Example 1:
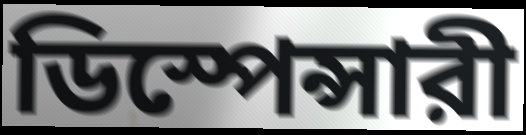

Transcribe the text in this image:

ডিস্পেন্সারী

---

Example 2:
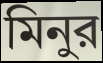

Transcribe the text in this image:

মিনুর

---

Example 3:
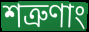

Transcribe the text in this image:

শত্রুণাং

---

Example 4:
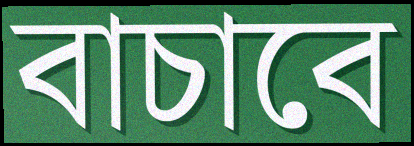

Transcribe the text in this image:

বাচাবে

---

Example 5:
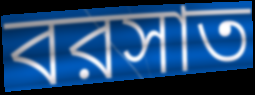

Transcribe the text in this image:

বরসাত